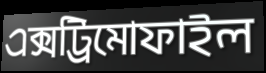
এক্সট্রিমোফাইল